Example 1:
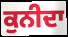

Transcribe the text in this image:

ਕੁਨੀਦਾ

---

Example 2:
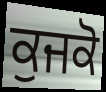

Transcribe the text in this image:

ਕੁਜਕੋ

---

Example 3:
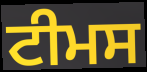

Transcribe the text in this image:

ਟੀਮਸ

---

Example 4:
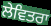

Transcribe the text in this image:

ਲੇਵਿਤਰਾ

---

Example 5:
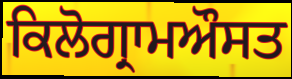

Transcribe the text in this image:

ਕਿਲੋਗ੍ਰਾਮਔਸਤ